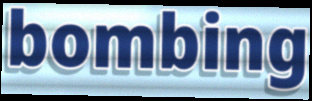
bombing